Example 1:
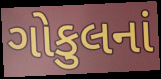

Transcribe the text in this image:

ગોકુલનાં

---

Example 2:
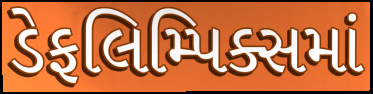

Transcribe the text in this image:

ડેફલિમ્પિક્સમાં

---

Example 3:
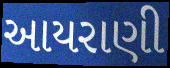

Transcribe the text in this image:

આયરાણી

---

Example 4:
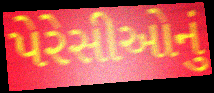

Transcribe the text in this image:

પેરેસીઓનું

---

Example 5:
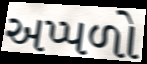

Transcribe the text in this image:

અપ્પળો